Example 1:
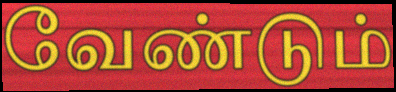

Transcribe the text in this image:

வேண்டும்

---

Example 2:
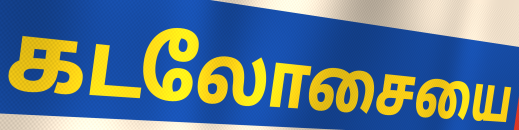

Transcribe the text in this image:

கடலோசையை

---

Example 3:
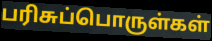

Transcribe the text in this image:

பரிசுப்பொருள்கள்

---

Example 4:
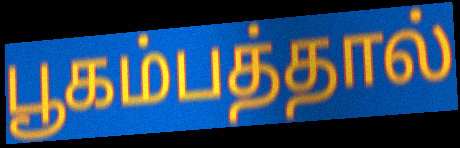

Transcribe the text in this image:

பூகம்பத்தால்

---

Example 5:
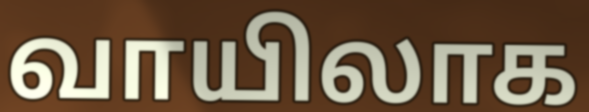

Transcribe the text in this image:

வாயிலாக